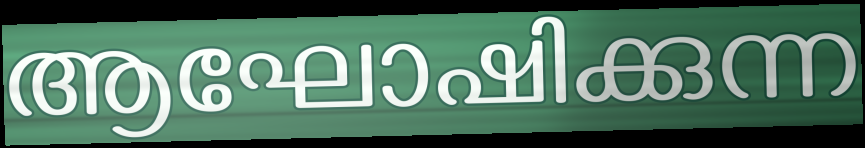
ആഘോഷിക്കുന്ന